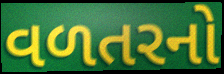
વળતરનો